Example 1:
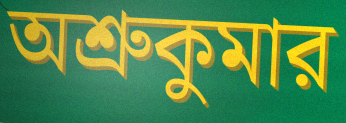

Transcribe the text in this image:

অশ্রুকুমার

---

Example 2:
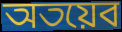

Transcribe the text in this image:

অতয়েব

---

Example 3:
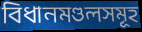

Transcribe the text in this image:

বিধানমণ্ডলসমূহ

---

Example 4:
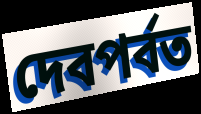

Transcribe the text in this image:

দেবপর্বত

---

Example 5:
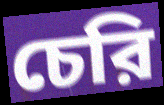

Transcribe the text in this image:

চেরি